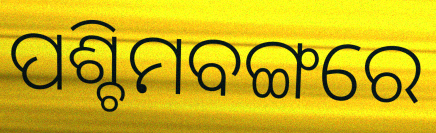
ପଶ୍ଚିମବଙ୍ଗରେ